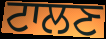
ਟਾਲਣ